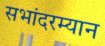
सभांदरम्यान